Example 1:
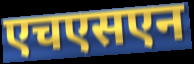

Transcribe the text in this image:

एचएसएन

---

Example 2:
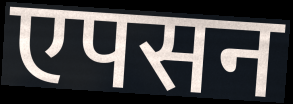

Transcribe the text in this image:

एपसन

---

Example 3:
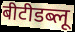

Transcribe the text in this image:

बीटीडब्लू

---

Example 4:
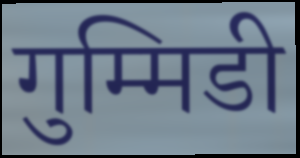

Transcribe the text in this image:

गुम्मिडी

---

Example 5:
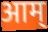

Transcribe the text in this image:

आम्